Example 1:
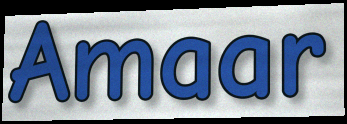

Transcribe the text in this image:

Amaar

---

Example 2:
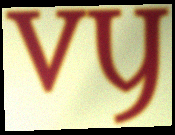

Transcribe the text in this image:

vy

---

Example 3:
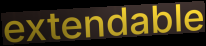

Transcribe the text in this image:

extendable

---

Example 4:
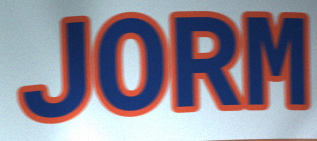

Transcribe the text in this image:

JORM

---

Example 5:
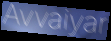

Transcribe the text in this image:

Avvaiyar